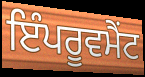
ਇੰਪਰੂਵਮੈਂਟ